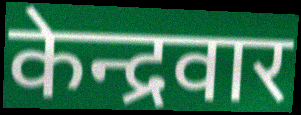
केन्द्रवार